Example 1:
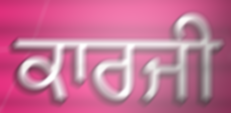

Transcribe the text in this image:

ਕਾਰਜੀ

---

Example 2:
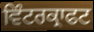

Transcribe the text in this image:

ਵਿੰਟਰਕ੍ਰਾਫਟ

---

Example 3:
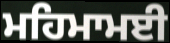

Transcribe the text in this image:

ਮਹਿਮਾਮਈ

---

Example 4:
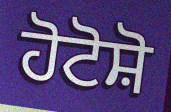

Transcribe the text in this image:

ਹੋਟੋਸ਼ੋ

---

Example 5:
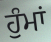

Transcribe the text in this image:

ਹੁੰਮਾਂ